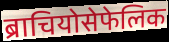
ब्राचियोसेफेलिक